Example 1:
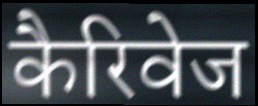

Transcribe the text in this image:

कैरिवेज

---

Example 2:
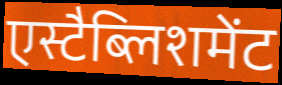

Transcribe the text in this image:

एस्टैब्लिशमेंट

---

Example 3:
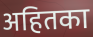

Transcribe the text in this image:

अहितका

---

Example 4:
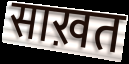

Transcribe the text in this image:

साख़त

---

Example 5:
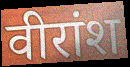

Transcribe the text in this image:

वीरांश